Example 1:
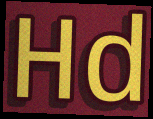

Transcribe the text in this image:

Hd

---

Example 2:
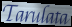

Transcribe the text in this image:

Tarulata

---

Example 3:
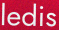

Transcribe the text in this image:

ledis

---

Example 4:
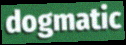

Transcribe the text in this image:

dogmatic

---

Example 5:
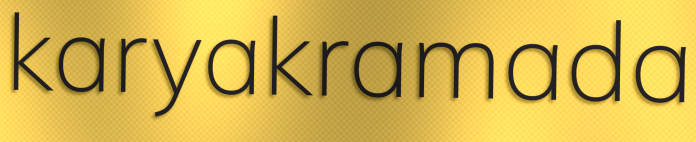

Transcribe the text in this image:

karyakramada